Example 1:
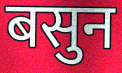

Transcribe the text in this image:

बसुन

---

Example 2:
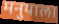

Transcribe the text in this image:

मनुयाला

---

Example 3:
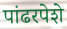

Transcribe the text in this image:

पांढरपेशे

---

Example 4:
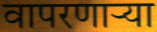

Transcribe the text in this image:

वापरणार्‍या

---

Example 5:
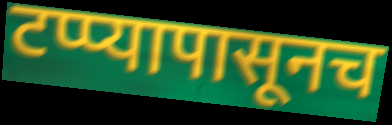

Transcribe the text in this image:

टप्प्यापासूनच